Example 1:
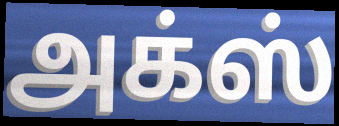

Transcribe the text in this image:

அக்ஸ்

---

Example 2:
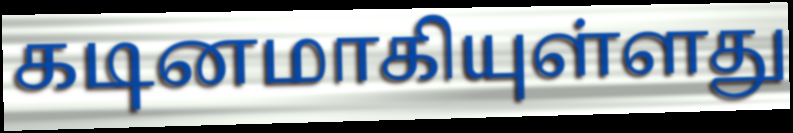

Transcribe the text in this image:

கடினமாகியுள்ளது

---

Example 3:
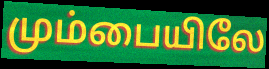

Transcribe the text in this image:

மும்பையிலே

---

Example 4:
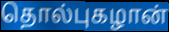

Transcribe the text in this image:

தொல்புகழான்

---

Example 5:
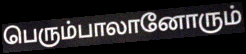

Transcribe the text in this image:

பெரும்பாலானோரும்